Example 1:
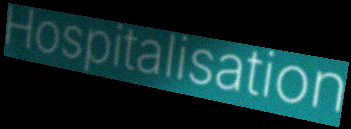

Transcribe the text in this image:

Hospitalisation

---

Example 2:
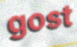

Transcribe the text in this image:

gost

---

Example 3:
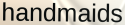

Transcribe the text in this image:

handmaids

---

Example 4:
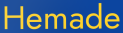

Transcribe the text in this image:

Hemade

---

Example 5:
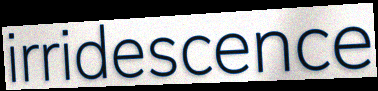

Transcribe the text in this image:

irridescence